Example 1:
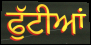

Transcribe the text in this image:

ਫੁੱਟੀਆਂ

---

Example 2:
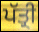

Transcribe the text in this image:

ਪੱਤ੍ਰੀ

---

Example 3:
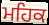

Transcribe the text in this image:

ਮਹਿਕ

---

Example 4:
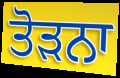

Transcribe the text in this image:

ਤੋੜਨਾ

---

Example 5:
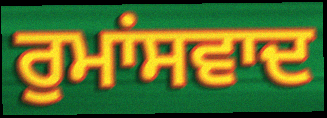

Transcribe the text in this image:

ਰੁਮਾਂਸਵਾਦ